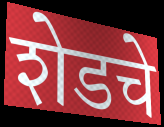
शेडचे